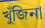
খুঁজিনা